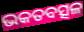
ଭକତବତ୍ସଳ